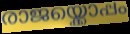
രാജയ്ക്കൊപ്പം